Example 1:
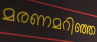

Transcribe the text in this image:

മരണമറിഞ്ഞ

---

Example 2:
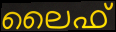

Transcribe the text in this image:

ലൈഫ്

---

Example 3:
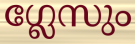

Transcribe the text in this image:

ഗ്ലേസും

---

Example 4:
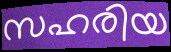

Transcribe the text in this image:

സഹരിയ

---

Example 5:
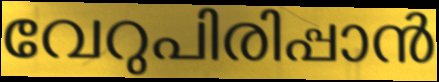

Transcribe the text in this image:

വേറുപിരിപ്പാൻ